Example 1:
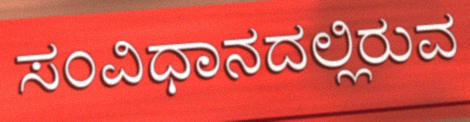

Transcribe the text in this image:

ಸಂವಿಧಾನದಲ್ಲಿರುವ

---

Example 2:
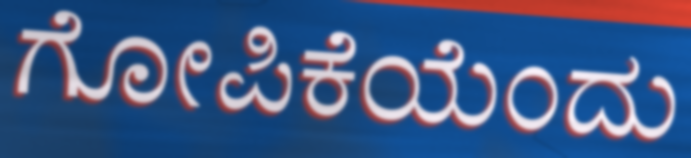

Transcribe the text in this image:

ಗೋಪಿಕೆಯೆಂದು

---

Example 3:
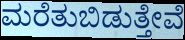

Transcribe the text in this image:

ಮರೆತುಬಿಡುತ್ತೇವೆ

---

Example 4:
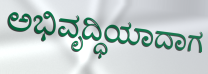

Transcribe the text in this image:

ಅಭಿವೃದ್ಧಿಯಾದಾಗ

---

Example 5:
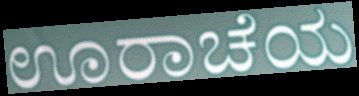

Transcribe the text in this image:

ಊರಾಚೆಯ